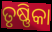
ତୃଷ୍ଣିକା